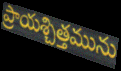
ప్రాయశ్చిత్తమును